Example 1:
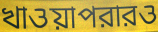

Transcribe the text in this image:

খাওয়াপরারও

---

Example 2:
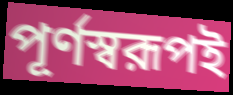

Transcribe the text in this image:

পূর্ণস্বরূপই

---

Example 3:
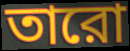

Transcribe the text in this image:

তারো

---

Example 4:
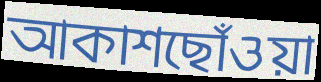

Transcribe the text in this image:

আকাশছোঁওয়া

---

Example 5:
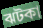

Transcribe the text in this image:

ঝটকা